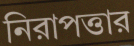
নিরাপত্তার